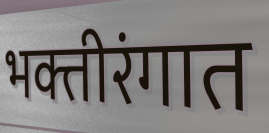
भक्तीरंगात